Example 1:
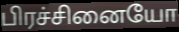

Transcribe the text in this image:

பிரச்சினையோ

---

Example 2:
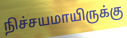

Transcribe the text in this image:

நிச்சயமாயிருக்கு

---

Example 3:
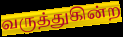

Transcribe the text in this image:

வருத்துகின்ற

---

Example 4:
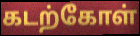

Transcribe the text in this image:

கடற்கோள்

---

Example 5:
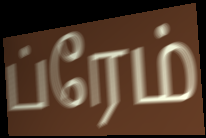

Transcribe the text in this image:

ப்ரேம்